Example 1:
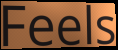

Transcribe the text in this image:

Feels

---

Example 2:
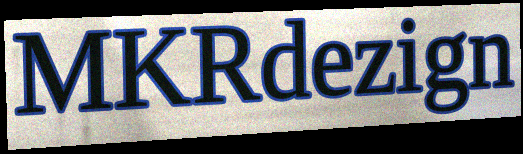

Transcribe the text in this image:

MKRdezign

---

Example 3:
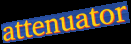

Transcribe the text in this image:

attenuator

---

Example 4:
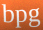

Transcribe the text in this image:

bpg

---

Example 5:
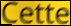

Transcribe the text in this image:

Cette